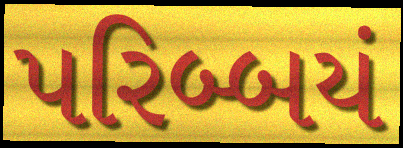
પરિબ્બયં